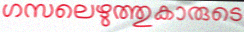
ഗസലെഴുത്തുകാരുടെ